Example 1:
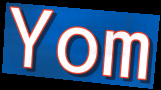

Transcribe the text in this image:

Yom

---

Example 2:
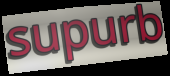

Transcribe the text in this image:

supurb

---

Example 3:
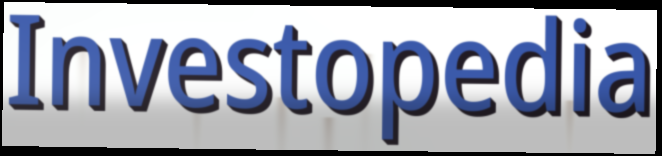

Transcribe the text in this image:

Investopedia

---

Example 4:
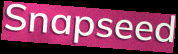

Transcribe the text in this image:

Snapseed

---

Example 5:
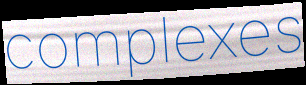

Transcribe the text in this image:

complexes